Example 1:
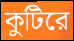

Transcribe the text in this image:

কুটিরে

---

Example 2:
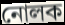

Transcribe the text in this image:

নোলক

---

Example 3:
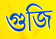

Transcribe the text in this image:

গুজি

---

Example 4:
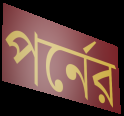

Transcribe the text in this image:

পর্নের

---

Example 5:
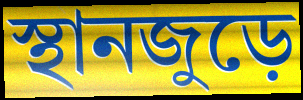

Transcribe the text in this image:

স্থানজুড়ে